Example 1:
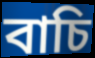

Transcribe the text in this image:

বাচি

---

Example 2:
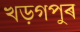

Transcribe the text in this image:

খড়গপুৰ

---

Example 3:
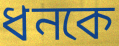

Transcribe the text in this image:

ধনকে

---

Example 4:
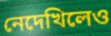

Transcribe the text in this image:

নেদেখিলেও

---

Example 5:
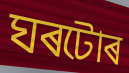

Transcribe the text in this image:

ঘৰটোৰ